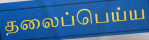
தலைப்பெய்ய